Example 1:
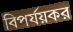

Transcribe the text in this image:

বিপর্যয়কর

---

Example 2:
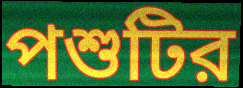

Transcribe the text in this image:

পশুটির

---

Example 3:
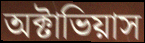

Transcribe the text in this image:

অক্টাভিয়াস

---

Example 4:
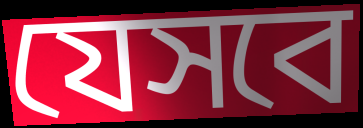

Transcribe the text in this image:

যেসবে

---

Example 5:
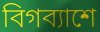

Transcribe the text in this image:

বিগব্যাশে